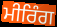
ਮੀਰਿੰਗ